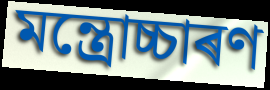
মন্ত্ৰোচ্চাৰণ